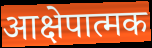
आक्षेपात्मक